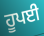
ਹੂਪਈ